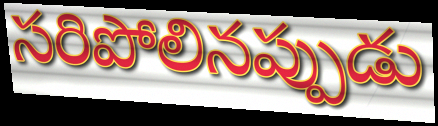
సరిపోలినప్పుడు